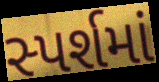
સ્પર્શમાં